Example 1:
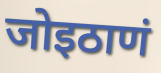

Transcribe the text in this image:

जोइठाणं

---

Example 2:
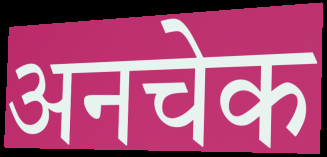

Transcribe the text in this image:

अनचेक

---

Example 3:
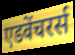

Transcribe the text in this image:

एडवेंचरर्स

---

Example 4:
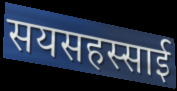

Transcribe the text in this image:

सयसहस्साई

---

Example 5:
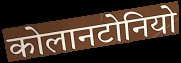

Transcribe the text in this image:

कोलानटोनियो